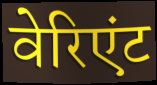
वेरिएंट